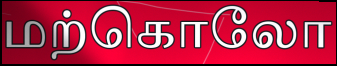
மற்கொலோ